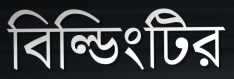
বিল্ডিংটির